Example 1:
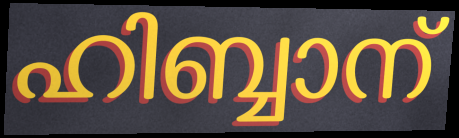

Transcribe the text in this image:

ഹിബ്ബാന്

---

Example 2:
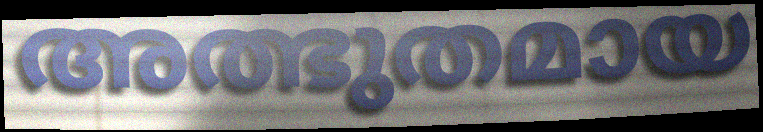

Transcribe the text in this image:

അത്ഭുതമായ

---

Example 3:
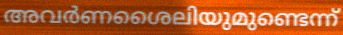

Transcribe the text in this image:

അവർണശൈലിയുമുണ്ടെന്ന്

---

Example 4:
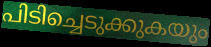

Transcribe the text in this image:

പിടിച്ചെടുക്കുകയും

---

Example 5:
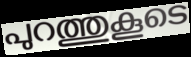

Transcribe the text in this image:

പുറത്തുകൂടെ